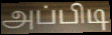
அப்பிடி